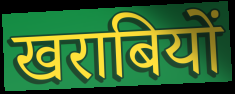
खराबियों